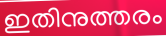
ഇതിനുത്തരം